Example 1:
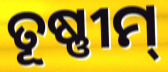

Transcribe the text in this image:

ତୂଷ୍ଣୀମ୍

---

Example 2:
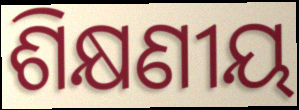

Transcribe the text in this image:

ଶିକ୍ଷଣୀୟ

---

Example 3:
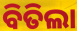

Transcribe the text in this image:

ବିତିଲା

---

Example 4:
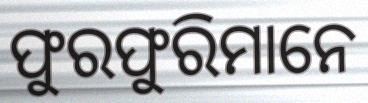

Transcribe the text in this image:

ଫୁରଫୁରିମାନେ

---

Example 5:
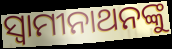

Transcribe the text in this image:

ସ୍ୱାମୀନାଥନଙ୍କୁ